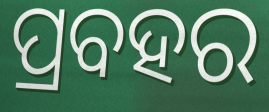
ପ୍ରବହର